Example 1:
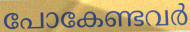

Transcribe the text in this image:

പോകേണ്ടവർ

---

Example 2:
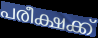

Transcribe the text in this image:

പരീക്ഷക്ക്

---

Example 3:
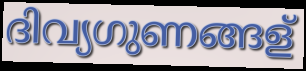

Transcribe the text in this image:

ദിവ്യഗുണങ്ങള്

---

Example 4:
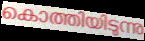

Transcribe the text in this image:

കൊത്തിയിടുന്നു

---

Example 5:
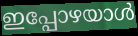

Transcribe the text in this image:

ഇപ്പോഴയാൾ